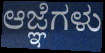
ಆಜ್ಞೆಗಳು